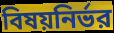
বিষয়নির্ভর